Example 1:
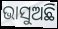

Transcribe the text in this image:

ଭାସୁଅଛି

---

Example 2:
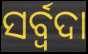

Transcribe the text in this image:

ସର୍ବ୍ବଦା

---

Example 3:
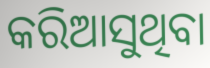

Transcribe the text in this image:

କରିଆସୁଥିବା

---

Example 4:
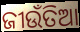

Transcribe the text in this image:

ଜୀଉଁତିଆ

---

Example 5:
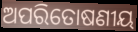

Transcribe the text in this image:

ଅପରିତୋଷଣୀୟ